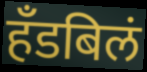
हँडबिलं